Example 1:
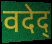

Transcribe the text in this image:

वदेद्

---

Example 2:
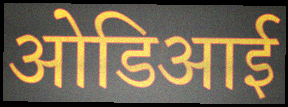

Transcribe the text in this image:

ओडिआई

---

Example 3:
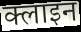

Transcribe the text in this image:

क्लाइन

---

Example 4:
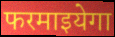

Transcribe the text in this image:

फरमाइयेगा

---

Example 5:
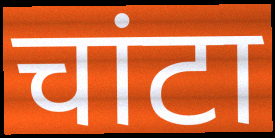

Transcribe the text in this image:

चांटा